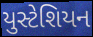
યુસ્ટેશિયન